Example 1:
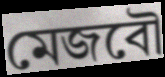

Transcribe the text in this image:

মেজবৌ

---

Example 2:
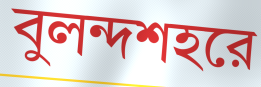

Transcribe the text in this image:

বুলন্দশহরে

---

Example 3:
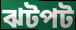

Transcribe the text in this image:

ঝটপট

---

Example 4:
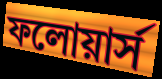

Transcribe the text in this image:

ফলোয়ার্স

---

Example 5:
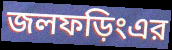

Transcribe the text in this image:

জলফড়িংএর